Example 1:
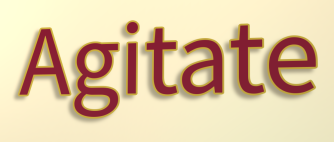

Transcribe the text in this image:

Agitate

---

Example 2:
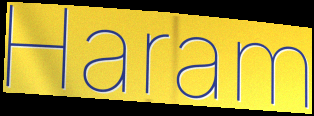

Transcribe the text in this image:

Haram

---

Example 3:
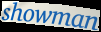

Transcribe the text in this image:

showman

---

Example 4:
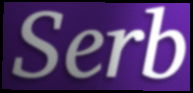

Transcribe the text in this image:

Serb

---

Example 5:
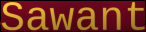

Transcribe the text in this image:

Sawant